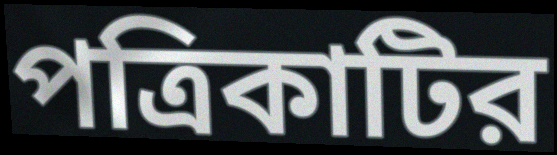
পত্রিকাটির